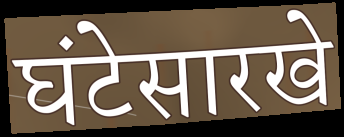
घंटेसारखे